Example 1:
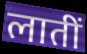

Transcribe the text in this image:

लातीं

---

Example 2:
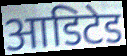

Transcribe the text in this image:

आडिटेड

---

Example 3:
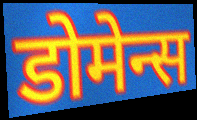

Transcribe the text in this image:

डोमेन्स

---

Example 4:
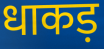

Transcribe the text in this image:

धाकड़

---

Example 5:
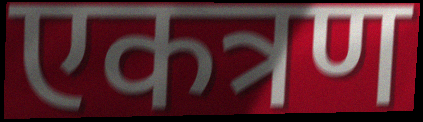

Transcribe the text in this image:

एकत्रण